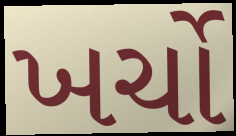
ખર્ચો